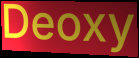
Deoxy